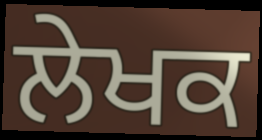
ਲੇਖਕ